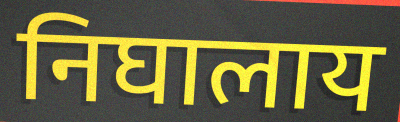
निघालाय